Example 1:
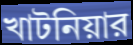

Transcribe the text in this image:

খাটনিয়ার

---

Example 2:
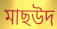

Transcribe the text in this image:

মাছউদ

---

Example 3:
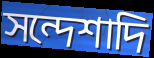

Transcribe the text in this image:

সন্দেশাদি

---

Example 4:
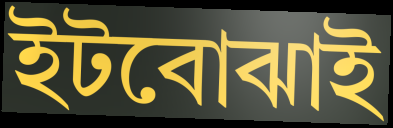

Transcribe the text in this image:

ইটবোঝাই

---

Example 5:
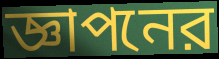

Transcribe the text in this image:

জ্ঞাপনের